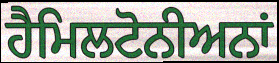
ਹੈਮਿਲਟੋਨੀਅਨਾਂ